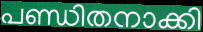
പണ്ഡിതനാക്കി